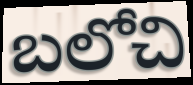
బలోచి